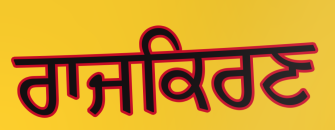
ਰਾਜਕਿਰਣ